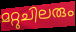
മറ്റുചിലരും